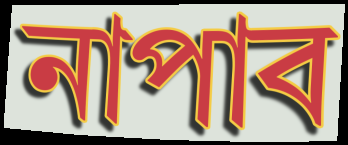
নাপাব